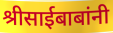
श्रीसाईबाबांनी